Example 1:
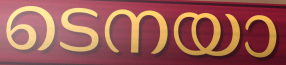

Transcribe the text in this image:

ടെനയാ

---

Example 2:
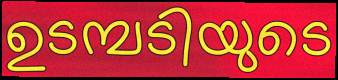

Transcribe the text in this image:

ഉടമ്പടിയുടെ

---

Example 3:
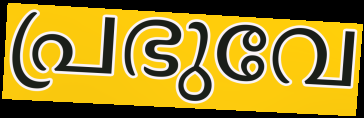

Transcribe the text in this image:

പ്രഭുവേ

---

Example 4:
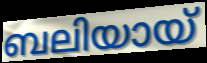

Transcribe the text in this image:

ബലിയായ്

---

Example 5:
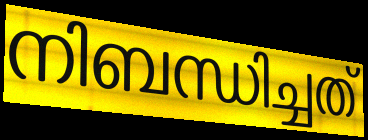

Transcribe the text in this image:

നിബന്ധിച്ചത്